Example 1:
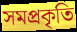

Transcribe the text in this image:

সমপ্রকৃতি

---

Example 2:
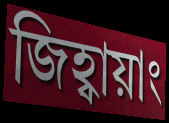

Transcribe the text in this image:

জিহ্বায়াং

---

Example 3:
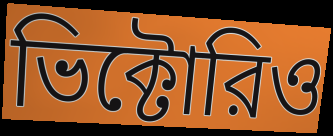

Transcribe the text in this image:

ভিক্টোরিও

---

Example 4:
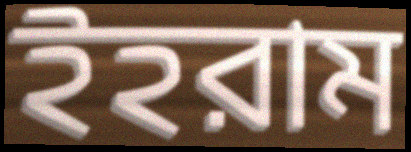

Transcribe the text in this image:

ইহরাম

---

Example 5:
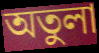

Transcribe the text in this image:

অতুলা